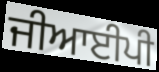
ਜੀਆਈਪੀ